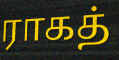
ராகத்